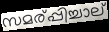
സമര്പ്പിച്ചാല്